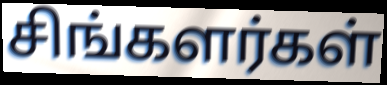
சிங்களர்கள்